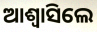
ଆଶ୍ୱାସିଲେ